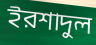
ইরশাদুল